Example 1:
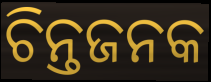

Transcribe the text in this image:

ଚିନ୍ତଜନକ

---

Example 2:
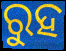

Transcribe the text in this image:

ରୁହ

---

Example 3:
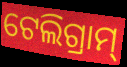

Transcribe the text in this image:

ଟେଲିଗ୍ରାମ୍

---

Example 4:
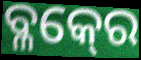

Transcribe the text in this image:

ବ୍ଳକ୍‍ରେ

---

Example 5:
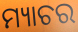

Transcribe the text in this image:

ମ୍ୟାଚର